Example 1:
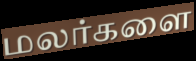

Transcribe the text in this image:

மலர்களை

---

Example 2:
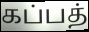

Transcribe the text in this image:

கப்பத்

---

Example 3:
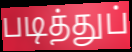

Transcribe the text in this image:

படித்துப்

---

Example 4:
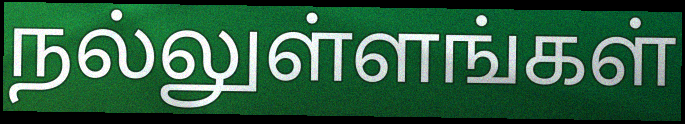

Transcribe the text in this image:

நல்லுள்ளங்கள்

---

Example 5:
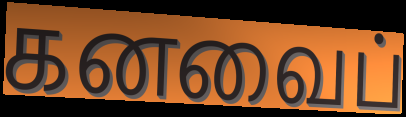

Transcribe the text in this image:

கனவைப்